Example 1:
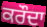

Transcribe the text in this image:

ਕਰੌਦਾ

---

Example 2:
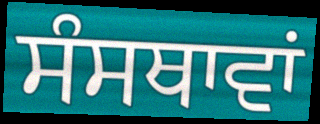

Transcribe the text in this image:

ਸੰਸਥਾਵਾਂ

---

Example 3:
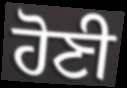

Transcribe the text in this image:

ਹੋਣੀ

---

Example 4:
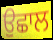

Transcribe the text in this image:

ਉਛਾਲ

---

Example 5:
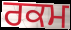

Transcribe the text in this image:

ਰਕਮ